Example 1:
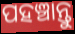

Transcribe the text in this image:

ପହଞ୍ଚାନ୍ତୁ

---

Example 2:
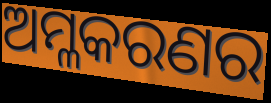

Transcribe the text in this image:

ଅମ୍ଳକରଣର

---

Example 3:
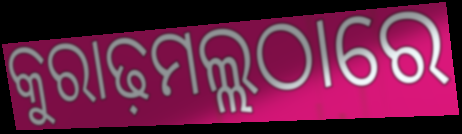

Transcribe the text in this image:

କୁରାଢ଼ମଲ୍ଲଠାରେ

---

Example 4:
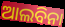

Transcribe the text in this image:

ଆଲବିନା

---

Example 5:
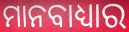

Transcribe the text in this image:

ମାନବାଧ୍ୟାର